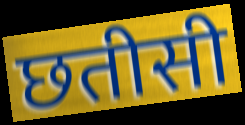
छतीसी